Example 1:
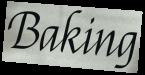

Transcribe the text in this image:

Baking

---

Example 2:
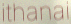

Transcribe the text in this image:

ithanai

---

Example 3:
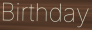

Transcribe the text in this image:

Birthday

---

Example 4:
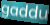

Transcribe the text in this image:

gaddu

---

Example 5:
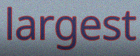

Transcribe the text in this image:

largest